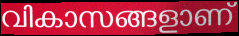
വികാസങ്ങളാണ്